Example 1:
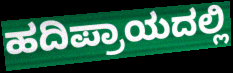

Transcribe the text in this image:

ಹದಿಪ್ರಾಯದಲ್ಲಿ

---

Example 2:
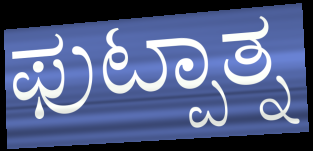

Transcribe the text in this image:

ಫುಟ್ಪಾತ್ನ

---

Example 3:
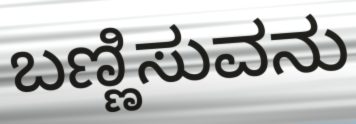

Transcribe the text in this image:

ಬಣ್ಣಿಸುವನು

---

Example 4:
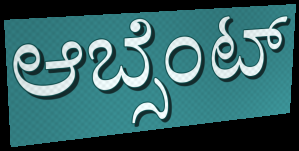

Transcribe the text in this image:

ಆಬ್ಸೆಂಟ್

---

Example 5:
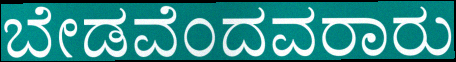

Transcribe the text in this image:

ಬೇಡವೆಂದವರಾರು